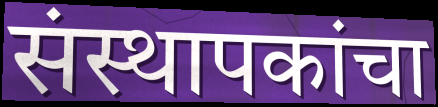
संस्थापकांचा